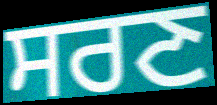
ਸਰਣ